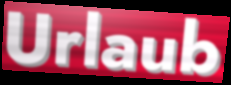
Urlaub